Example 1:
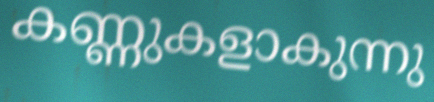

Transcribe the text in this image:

കണ്ണുകളാകുന്നു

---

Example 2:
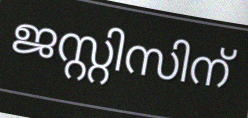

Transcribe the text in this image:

ജസ്റ്റിസിന്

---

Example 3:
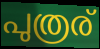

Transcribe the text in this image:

പുത്രര്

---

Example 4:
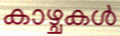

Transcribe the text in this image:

കാഴ്ചകൾ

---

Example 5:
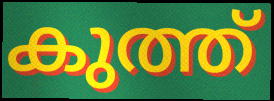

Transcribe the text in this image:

കുത്ത്